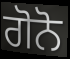
ਗੋਨੋ